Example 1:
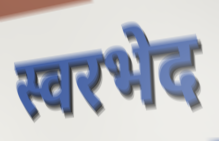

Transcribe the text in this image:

स्वरभेद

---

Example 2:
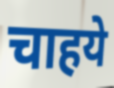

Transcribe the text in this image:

चाहये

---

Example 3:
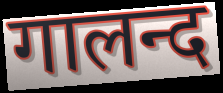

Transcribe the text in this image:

गालन्द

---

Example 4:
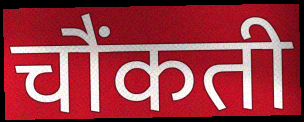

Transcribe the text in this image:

चौंकती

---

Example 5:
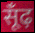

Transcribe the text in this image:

सूँढ़